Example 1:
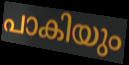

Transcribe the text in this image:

പാകിയും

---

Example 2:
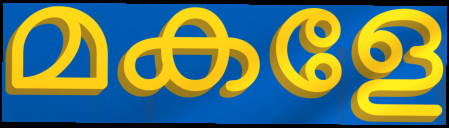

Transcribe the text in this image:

മകളേ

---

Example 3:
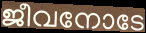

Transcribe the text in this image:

ജീവനോടേ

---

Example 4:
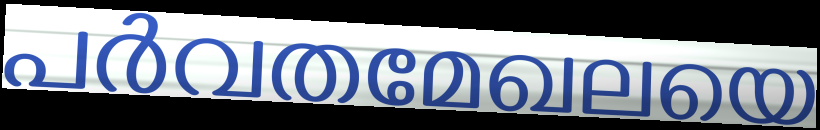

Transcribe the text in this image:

പർവതമേഖലയെ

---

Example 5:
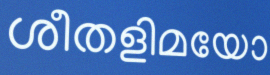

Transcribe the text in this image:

ശീതളിമയോ